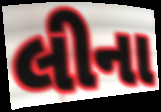
લીના